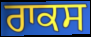
ਰਾਕਸ